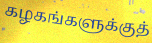
கழகங்களுக்குத்